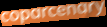
coparcenary